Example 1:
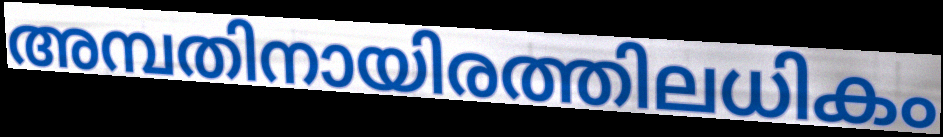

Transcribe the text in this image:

അമ്പതിനായിരത്തിലധികം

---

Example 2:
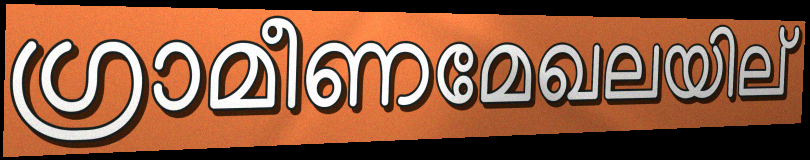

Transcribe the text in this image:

ഗ്രാമീണമേഖലയില്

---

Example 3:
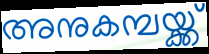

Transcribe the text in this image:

അനുകമ്പയ്ക്ക്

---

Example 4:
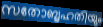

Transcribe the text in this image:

സതോബൃഹതിയും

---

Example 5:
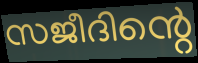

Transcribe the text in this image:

സജീദിന്റെ